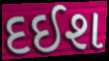
દઈશ